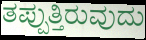
ತಪ್ಪುತ್ತಿರುವುದು